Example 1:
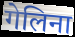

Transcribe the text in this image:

गेलिना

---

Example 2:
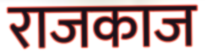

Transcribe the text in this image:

राजकाज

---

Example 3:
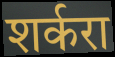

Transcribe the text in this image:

शर्करा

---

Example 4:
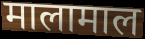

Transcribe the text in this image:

मालामाल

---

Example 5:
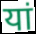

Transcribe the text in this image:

यां